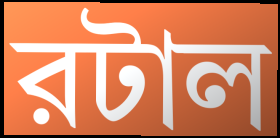
রটাল